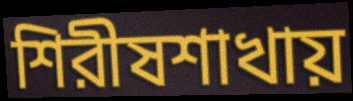
শিরীষশাখায়